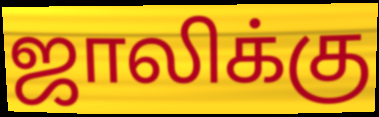
ஜாலிக்கு